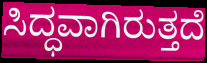
ಸಿದ್ಧವಾಗಿರುತ್ತದೆ